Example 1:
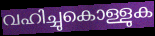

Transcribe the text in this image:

വഹിച്ചുകൊള്ളുക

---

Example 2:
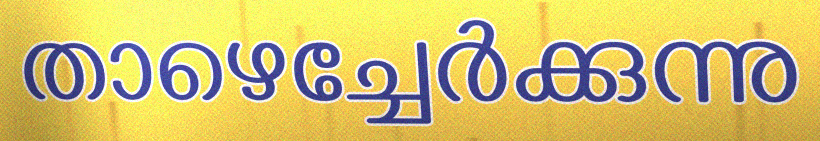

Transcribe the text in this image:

താഴെച്ചേർക്കുന്നു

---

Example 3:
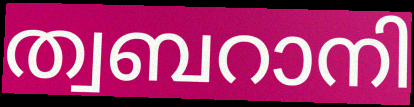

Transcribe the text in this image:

ത്വബറാനി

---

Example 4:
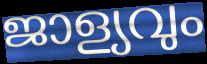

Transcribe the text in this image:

ജാള്യവും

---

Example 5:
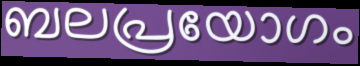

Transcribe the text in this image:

ബലപ്രയോഗം